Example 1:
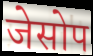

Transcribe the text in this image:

जेसोप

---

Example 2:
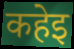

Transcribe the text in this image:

कहेइ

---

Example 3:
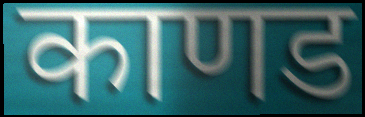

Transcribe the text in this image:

काणड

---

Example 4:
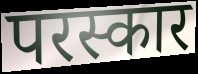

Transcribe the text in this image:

परस्कार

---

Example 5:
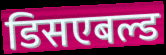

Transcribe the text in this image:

डिसएबल्ड